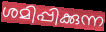
ശമിപ്പിക്കുന്ന